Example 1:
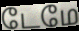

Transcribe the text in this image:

டேமே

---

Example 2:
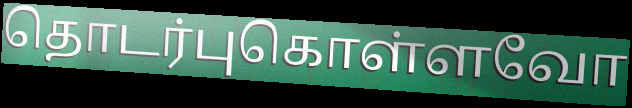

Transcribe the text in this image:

தொடர்புகொள்ளவோ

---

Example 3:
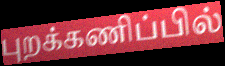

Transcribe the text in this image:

புறக்கணிப்பில்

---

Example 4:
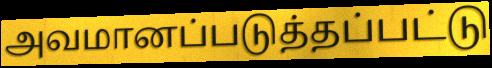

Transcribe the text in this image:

அவமானப்படுத்தப்பட்டு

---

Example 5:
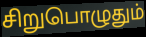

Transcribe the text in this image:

சிறுபொழுதும்